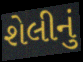
શેલીનું